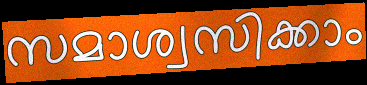
സമാശ്വസിക്കാം